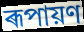
ৰূপায়ণ